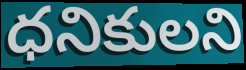
ధనికులని